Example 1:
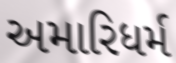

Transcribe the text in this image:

અમારિધર્મ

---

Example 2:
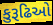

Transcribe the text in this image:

કુરૂઢિઓ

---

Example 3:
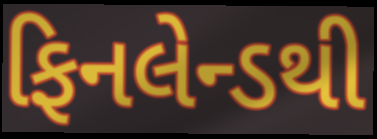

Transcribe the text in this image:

ફિનલેન્ડથી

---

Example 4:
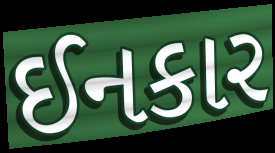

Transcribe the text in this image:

ઈનકાર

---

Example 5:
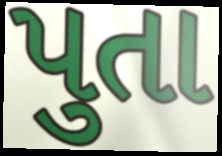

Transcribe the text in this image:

પુતા